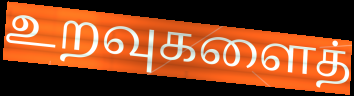
உறவுகளைத்